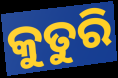
କୁତୁରି